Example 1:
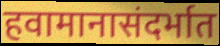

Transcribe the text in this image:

हवामानासंदर्भात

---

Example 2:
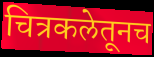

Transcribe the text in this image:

चित्रकलेतूनच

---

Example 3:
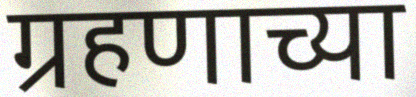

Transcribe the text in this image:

ग्रहणाच्या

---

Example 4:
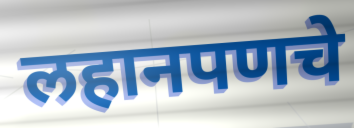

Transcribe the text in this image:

लहानपणचे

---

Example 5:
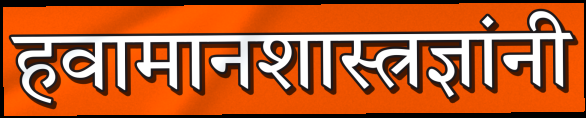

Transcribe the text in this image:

हवामानशास्त्रज्ञांनी